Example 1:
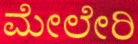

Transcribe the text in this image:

ಮೇಲೇರಿ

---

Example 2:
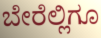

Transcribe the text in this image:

ಬೇರೆಲ್ಲಿಗೂ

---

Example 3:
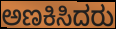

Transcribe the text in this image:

ಅಣಕಿಸಿದರು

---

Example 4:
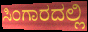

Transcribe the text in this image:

ಸಿಂಗಾರದಲ್ಲಿ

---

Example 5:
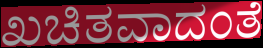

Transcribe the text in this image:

ಖಚಿತವಾದಂತೆ